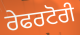
ਰੇਫਰਟੋਰੀ